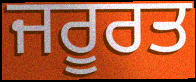
ਜਰੂਰਤ